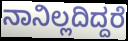
ನಾನಿಲ್ಲದಿದ್ದರೆ